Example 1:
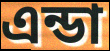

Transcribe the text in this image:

এন্ডা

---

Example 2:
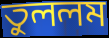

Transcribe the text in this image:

তুললম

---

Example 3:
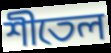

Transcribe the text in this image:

শীতেল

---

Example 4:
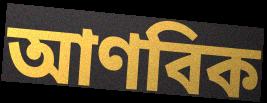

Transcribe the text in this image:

আণবিক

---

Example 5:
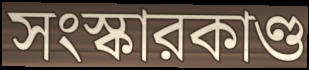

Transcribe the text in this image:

সংস্কারকাণ্ড